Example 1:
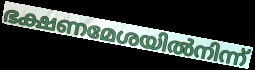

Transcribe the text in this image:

ഭക്ഷണമേശയിൽനിന്ന്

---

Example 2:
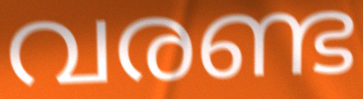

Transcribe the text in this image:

വരണ്ട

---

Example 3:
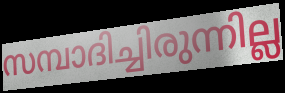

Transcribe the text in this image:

സമ്പാദിച്ചിരുന്നില്ല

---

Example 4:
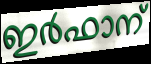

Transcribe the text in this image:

ഇർഫാന്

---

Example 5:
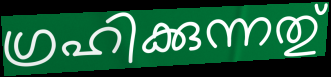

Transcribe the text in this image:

ഗ്രഹിക്കുന്നതു്